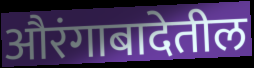
औरंगाबादेतील